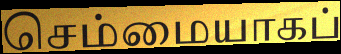
செம்மையாகப்